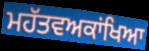
ਮਹੱਤਵਅਕਾਂਖਿਆ